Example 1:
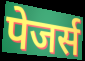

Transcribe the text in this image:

पेजर्स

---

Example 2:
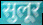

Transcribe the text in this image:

सुलूर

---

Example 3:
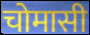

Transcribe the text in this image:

चोमासी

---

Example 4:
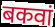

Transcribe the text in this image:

बकवां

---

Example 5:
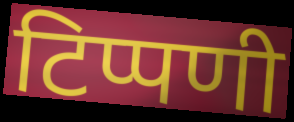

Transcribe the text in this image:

टिप्‍पणी